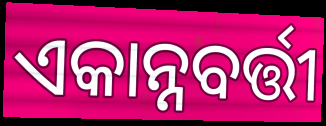
ଏକାନ୍ନବର୍ତ୍ତୀ